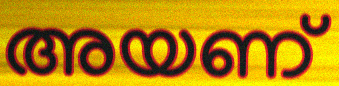
അയണ്